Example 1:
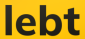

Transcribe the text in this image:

lebt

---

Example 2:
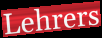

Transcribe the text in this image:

Lehrers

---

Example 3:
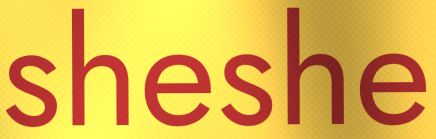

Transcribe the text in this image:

sheshe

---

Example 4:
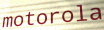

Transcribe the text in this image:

motorola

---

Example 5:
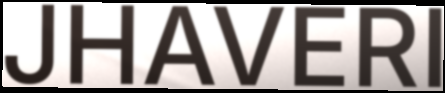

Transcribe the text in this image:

JHAVERI